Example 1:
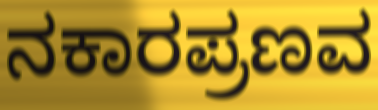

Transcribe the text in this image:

ನಕಾರಪ್ರಣವ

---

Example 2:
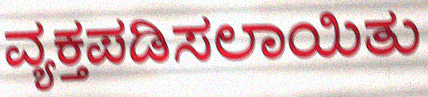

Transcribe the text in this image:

ವ್ಯಕ್ತಪಡಿಸಲಾಯಿತು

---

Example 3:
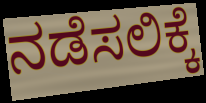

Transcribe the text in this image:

ನಡೆಸಲಿಕ್ಕೆ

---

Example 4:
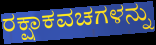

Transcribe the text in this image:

ರಕ್ಷಾಕವಚಗಳನ್ನು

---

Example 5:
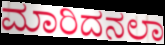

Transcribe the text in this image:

ಮಾರಿದನಲಾ